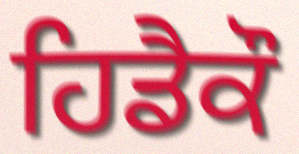
ਹਿਡੈਕੌ